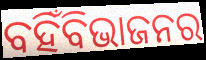
ବହିଁବିଭାଜନର